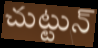
చుట్టున్